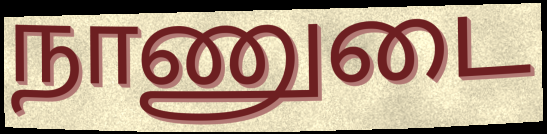
நாணுடை